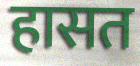
हासत